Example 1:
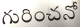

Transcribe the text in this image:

గురించనో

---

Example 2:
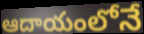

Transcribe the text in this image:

ఆదాయంలోనే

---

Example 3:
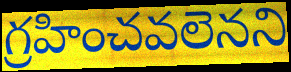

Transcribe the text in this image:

గ్రహించవలెనని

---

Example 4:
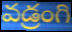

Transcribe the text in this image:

వడ్రంగి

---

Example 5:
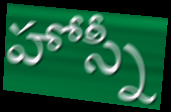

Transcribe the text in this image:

హోస్నీ